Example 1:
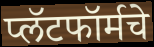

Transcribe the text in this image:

प्लॅटफॉर्मचे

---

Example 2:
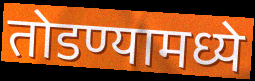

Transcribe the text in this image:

तोडण्यामध्ये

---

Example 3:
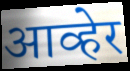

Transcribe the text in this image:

आव्हेर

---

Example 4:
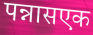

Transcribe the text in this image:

पन्नासएक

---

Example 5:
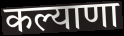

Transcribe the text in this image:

कल्याणा